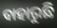
ବାହାରୁଛି